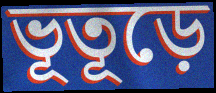
ভূতূড়ে